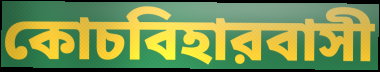
কোচবিহারবাসী